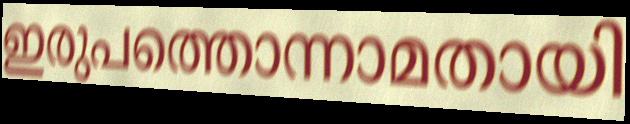
ഇരുപത്തൊന്നാമതായി